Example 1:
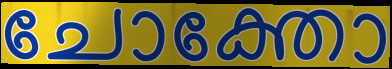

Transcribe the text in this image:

ചോക്തോ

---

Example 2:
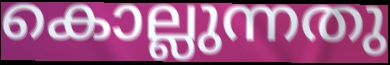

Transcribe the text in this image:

കൊല്ലുന്നതു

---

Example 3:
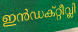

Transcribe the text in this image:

ഇൻഡക്റ്റീവ്ലി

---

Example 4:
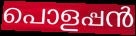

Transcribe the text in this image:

പൊളപ്പൻ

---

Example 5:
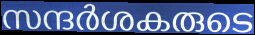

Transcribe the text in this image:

സന്ദർശകരുടെ